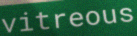
vitreous